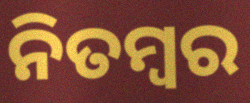
ନିତମ୍ୱର